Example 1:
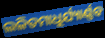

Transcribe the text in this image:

ଲଳିତମାଧୁର୍ଯ୍ୟାର୍ଣ୍ଣବ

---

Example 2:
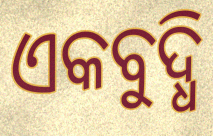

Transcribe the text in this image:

ଏକବୁଦ୍ଧି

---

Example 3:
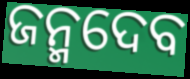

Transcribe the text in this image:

ଜନ୍ମଦେବ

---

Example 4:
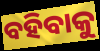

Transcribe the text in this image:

ବହିବାକୁ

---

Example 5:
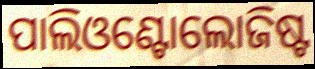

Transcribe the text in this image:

ପାଲିଓଣ୍ଟୋଲୋଜିଷ୍ଟ